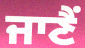
ਜਾਣੈਂ